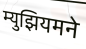
म्युझियमने